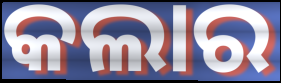
କଲାର